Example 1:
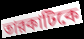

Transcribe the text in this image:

তারকাটিকে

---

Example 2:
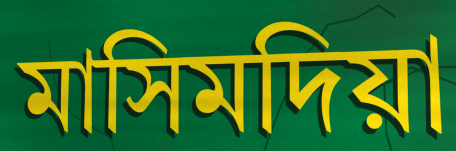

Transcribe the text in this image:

মাসিমদিয়া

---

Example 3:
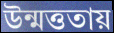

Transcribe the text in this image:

উন্মত্ততায়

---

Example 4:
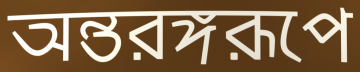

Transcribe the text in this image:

অন্তরঙ্গরূপে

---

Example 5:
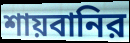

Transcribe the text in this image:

শায়বানির